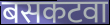
बसकटवा